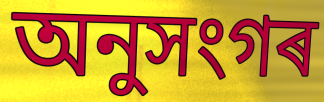
অনুসংগৰ